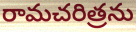
రామచరిత్రను